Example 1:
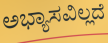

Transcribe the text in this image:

ಅಭ್ಯಾಸವಿಲ್ಲದೆ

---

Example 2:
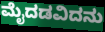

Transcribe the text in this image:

ಮೈದಡವಿದನು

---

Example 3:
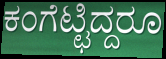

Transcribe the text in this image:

ಕಂಗೆಟ್ಟಿದ್ದರೂ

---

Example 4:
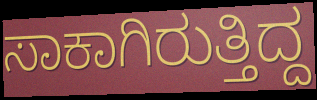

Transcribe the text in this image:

ಸಾಕಾಗಿರುತ್ತಿದ್ದ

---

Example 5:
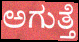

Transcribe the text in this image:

ಅಗುತ್ತೆ